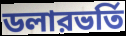
ডলারভর্তি